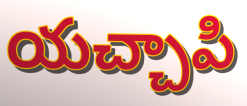
యచ్చాపి